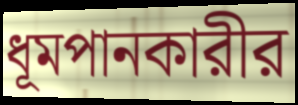
ধূমপানকারীর